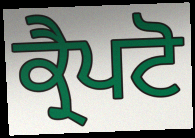
ਕ੍ਰੈਪਟੋ